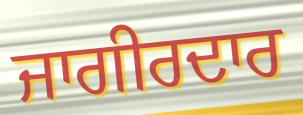
ਜਾਗੀਰਦਾਰ